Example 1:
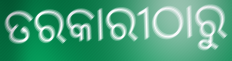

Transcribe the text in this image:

ତରକାରୀଠାରୁ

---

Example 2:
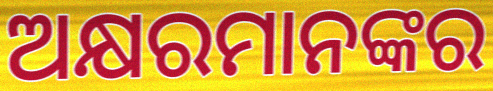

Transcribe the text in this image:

ଅକ୍ଷରମାନଙ୍କର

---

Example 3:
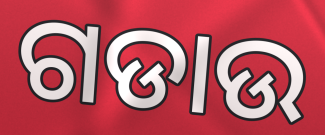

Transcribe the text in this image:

ଗଡାଉ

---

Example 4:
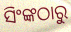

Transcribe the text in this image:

ସିଂଙ୍କଠାରୁ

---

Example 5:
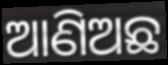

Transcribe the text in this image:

ଆଣିଅଛ